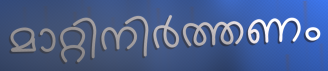
മാറ്റിനിർത്തണം